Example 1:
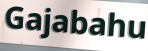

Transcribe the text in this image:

Gajabahu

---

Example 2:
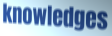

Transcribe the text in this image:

knowledges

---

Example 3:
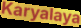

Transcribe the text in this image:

Karyalaya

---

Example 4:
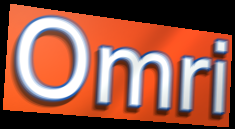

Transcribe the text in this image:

Omri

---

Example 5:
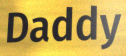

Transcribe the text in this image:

Daddy